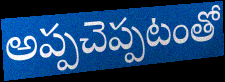
అప్పచెప్పటంతో